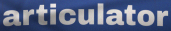
articulator